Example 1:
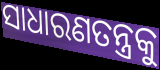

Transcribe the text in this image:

ସାଧାରଣତନ୍ତ୍ରକୁ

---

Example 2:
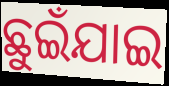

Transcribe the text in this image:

ଛୁଇଁଯାଇ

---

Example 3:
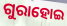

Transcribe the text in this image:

ଗୁରାହୋଇ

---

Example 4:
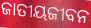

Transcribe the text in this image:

ଜାତୀୟଜୀବନ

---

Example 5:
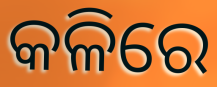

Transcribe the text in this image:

କଳିରେ